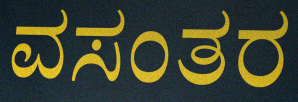
ವಸಂತರ